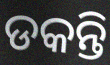
ଡକନ୍ତି